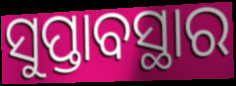
ସୁପ୍ତାବସ୍ଥାର